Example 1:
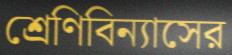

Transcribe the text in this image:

শ্রেণিবিন্যাসের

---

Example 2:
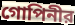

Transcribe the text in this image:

গোপিনীর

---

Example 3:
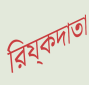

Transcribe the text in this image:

রিয্কদাতা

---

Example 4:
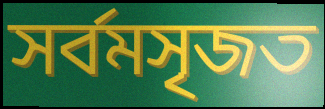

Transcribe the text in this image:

সর্বমসৃজত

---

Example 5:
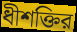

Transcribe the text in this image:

ধীশক্তির